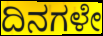
ದಿನಗಳೇ